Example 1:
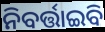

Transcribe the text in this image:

ନିବର୍ତ୍ତାଇବି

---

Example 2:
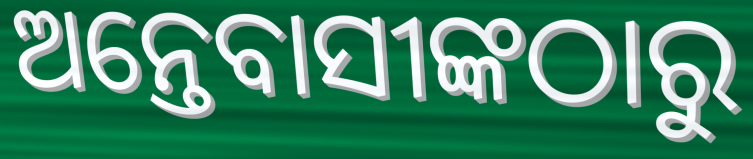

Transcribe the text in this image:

ଅନ୍ତେବାସୀଙ୍କଠାରୁ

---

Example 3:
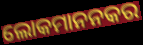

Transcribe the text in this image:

ଲୋକମାନନକର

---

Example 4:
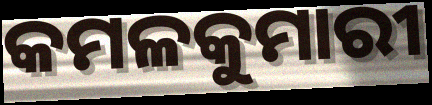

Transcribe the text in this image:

କମଳକୁମାରୀ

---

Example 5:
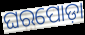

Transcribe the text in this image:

ଘରପୋଡ଼ା